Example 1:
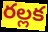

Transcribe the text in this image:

రల్లక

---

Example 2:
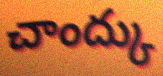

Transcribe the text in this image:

చాంద్కు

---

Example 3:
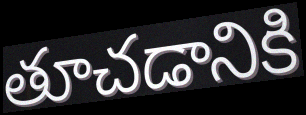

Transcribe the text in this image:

తూచడానికి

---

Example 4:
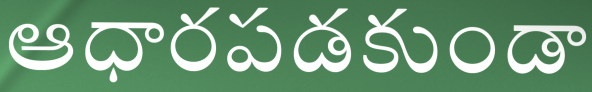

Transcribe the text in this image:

ఆధారపడకుండా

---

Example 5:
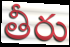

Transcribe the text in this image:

తీరు